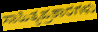
ಸಾಹಿತ್ಯಪ್ರಕಾರಗಳು